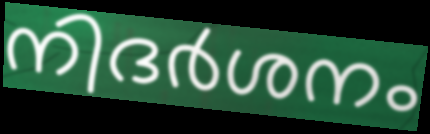
നിദർശനം